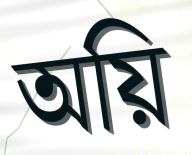
অয়ি